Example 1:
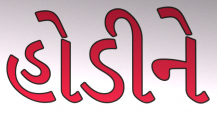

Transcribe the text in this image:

હોડીને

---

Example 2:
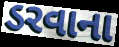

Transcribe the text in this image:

ડરવાના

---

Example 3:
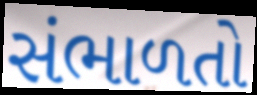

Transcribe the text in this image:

સંભાળતો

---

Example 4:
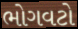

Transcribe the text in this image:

ભોગવટો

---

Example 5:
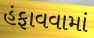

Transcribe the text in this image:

હંફાવવામાં